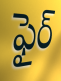
ఫైర్